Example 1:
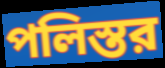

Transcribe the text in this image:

পলিস্তর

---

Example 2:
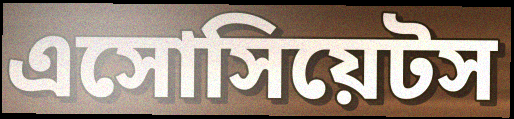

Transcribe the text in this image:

এসোসিয়েটস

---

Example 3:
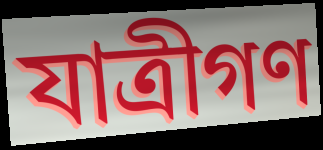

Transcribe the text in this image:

যাত্রীগণ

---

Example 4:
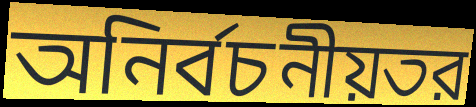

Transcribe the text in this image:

অনির্বচনীয়তর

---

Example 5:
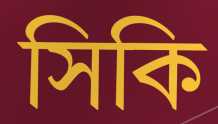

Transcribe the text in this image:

সিকি